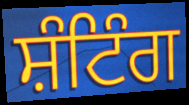
ਸ਼ੰਟਿੰਗ